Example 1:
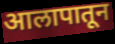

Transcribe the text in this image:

आलापातून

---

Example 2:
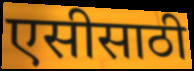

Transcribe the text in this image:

एसीसाठी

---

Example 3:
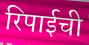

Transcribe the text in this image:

रिपाईची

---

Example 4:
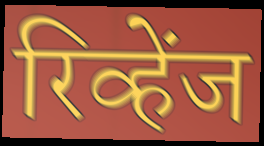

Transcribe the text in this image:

रिव्हेंज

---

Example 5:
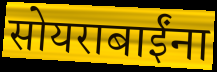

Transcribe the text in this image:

सोयराबाईंना